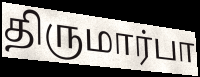
திருமார்பா